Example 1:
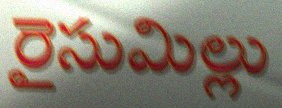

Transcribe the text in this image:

రైసుమిల్లు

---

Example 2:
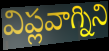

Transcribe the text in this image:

విప్లవాగ్నిని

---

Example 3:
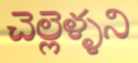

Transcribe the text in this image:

చెల్లెళ్ళని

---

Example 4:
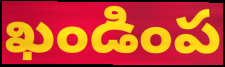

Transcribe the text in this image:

ఖండింప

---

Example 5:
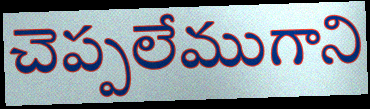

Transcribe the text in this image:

చెప్పలేముగాని